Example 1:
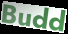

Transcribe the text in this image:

Budd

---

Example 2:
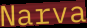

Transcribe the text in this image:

Narva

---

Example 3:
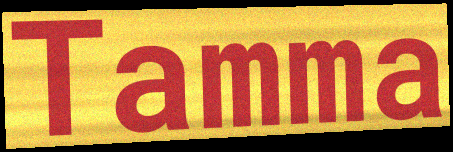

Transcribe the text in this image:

Tamma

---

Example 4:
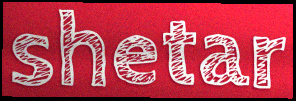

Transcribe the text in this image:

shetar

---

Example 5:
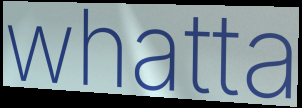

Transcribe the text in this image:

whatta